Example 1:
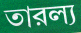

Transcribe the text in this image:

তারল্য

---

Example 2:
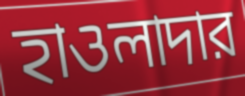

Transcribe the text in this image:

হাওলাদার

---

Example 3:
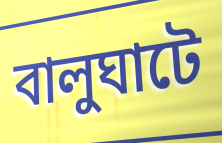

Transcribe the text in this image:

বালুঘাটে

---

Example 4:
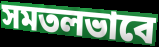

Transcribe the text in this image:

সমতলভাবে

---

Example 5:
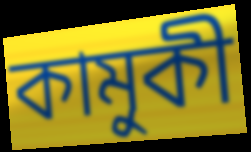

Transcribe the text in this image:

কামুকী